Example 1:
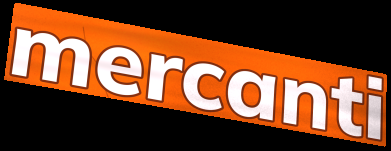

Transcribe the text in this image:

mercanti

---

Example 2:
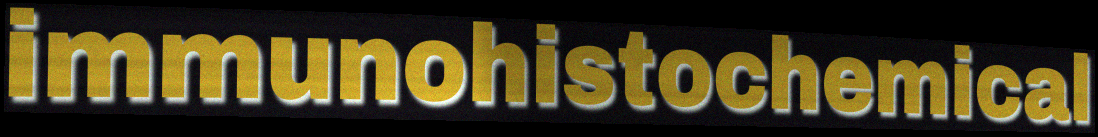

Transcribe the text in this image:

immunohistochemical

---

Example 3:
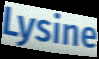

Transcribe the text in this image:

Lysine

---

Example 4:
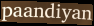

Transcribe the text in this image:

paandiyan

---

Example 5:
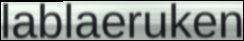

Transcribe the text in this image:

lablaeruken